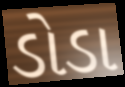
ડોડા